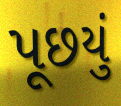
પૂછયું